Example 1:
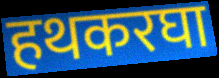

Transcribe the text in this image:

हथकरघा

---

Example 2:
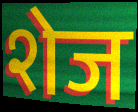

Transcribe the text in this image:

शेज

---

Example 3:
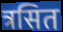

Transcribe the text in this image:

त्रसित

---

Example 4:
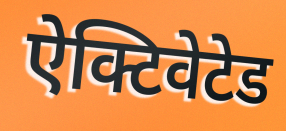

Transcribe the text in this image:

ऐक्टिवेटेड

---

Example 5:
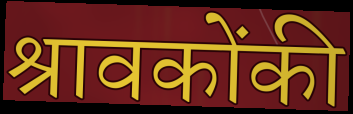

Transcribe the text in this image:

श्रावकोंकी